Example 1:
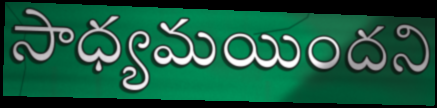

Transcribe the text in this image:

సాధ్యమయిందని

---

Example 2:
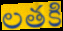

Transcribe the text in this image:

లతకి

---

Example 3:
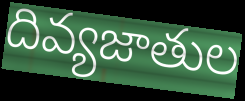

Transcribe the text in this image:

దివ్యజాతుల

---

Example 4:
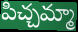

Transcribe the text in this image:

పిచ్చమ్మా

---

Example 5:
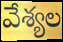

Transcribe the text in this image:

వేశ్యల